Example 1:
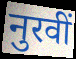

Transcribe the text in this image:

नुरवीं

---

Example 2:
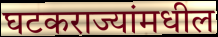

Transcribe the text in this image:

घटकराज्यांमधील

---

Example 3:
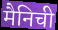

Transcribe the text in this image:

मैनिची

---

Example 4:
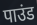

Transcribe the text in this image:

पाउंड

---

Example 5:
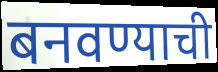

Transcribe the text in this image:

बनवण्याची